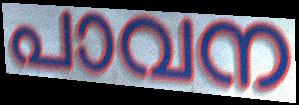
പാവന